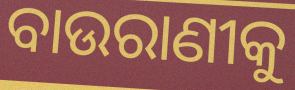
ବାଉରାଣୀକୁ